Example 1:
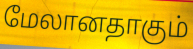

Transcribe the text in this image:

மேலானதாகும்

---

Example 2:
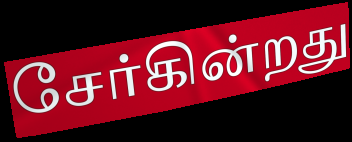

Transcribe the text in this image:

சேர்கின்றது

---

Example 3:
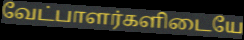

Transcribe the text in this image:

வேட்பாளர்களிடையே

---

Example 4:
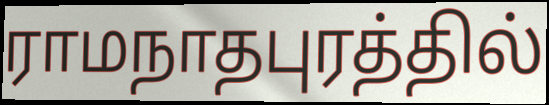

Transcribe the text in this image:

ராமநாதபுரத்தில்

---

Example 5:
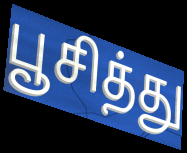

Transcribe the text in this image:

பூசித்து